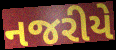
નજરીયે